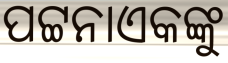
ପଟ୍ଟନାଏକଙ୍କୁ